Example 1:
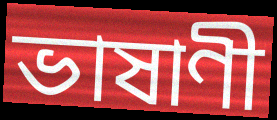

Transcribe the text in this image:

ভাষাণী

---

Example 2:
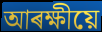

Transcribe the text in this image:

আৰক্ষীয়ে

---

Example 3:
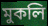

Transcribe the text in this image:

মুকলি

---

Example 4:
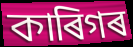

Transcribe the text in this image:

কাৰিগৰ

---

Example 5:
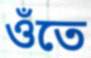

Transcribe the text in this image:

ওঁতে